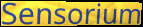
Sensorium